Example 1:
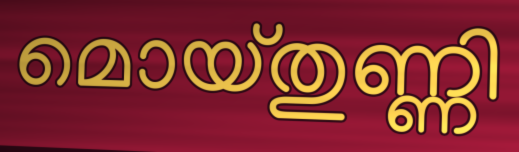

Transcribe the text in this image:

മൊയ്തുണ്ണി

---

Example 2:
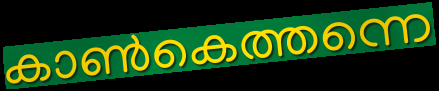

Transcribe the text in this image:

കാൺകെത്തന്നെ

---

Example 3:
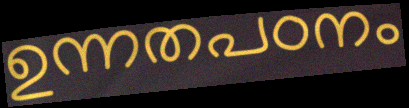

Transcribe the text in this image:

ഉന്നതപഠനം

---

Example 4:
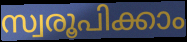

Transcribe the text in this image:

സ്വരൂപിക്കാം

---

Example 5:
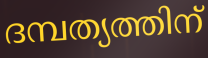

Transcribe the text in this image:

ദമ്പത്യത്തിന്